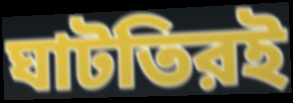
ঘাটতিরই